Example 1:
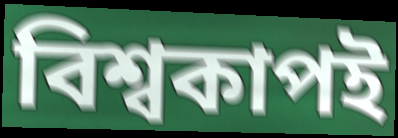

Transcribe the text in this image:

বিশ্বকাপই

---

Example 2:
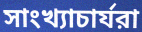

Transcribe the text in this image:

সাংখ্যাচার্যরা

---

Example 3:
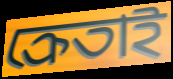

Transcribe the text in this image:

ক্রেতাই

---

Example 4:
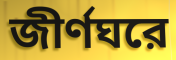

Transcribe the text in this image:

জীর্ণঘরে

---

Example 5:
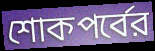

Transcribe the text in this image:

শোকপর্বের